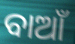
ବାଆଁ